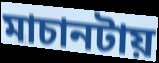
মাচানটায়